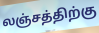
லஞ்சத்திற்கு